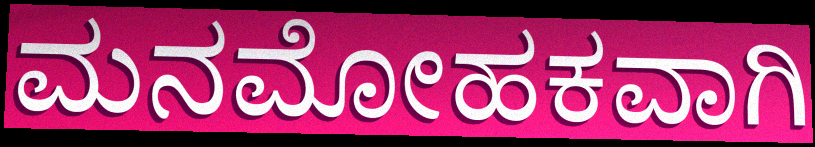
ಮನಮೋಹಕವಾಗಿ